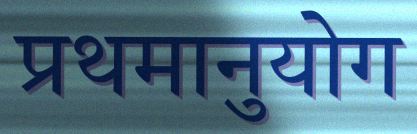
प्रथमानुयोग